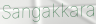
Sangakkara